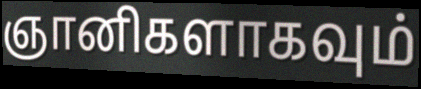
ஞானிகளாகவும்